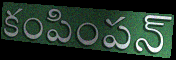
కంపింపన్